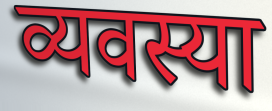
व्यवस्या